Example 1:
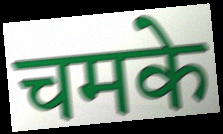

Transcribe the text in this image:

चमके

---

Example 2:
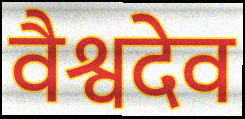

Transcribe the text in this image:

वैश्वदेव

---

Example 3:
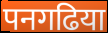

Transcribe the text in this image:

पनगढिया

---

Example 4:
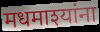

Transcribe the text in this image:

मधमाश्यांना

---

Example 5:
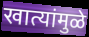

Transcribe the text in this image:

खात्यांमुळे